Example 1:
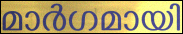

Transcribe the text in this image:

മാർഗമായി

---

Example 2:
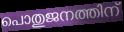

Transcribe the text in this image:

പൊതുജനത്തിന്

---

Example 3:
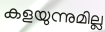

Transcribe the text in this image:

കളയുന്നുമില്ല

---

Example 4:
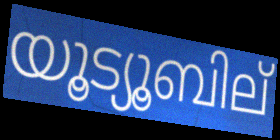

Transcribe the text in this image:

യൂട്യൂബില്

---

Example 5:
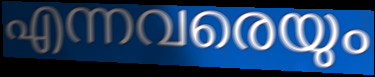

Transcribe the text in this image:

എന്നവരെയും